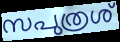
സപുത്രശ്